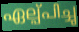
ഏല്പ്പിച്ചു